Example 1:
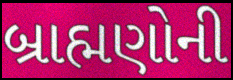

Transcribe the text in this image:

બ્રાહ્મણોની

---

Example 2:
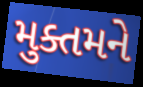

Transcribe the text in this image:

મુક્તમને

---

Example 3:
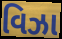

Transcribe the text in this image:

વિઝા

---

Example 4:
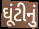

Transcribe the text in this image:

ઘૂંટીનું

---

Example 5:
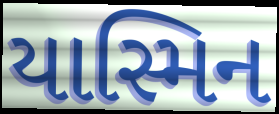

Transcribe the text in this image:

યાસ્મિન